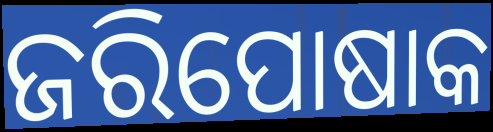
ଜରିପୋଷାକ